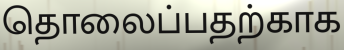
தொலைப்பதற்காக